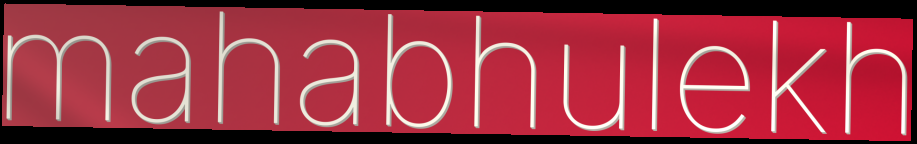
mahabhulekh